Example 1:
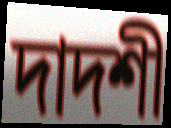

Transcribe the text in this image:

দাদশী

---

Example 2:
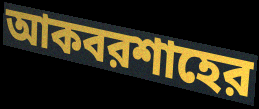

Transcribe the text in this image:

আকবরশাহের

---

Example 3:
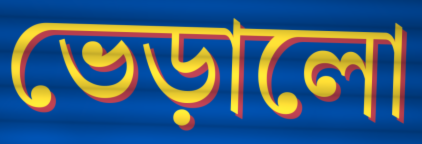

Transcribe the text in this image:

ভেড়ালো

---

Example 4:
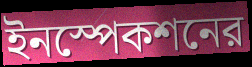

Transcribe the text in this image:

ইনস্পেকশনের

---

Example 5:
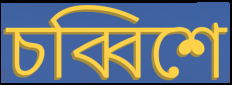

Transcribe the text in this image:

চব্বিশে